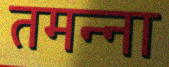
तमन्ना